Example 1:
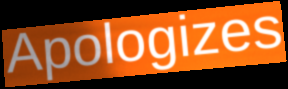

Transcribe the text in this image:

Apologizes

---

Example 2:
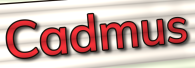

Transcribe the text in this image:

Cadmus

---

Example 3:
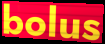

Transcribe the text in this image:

bolus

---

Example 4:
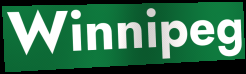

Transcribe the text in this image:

Winnipeg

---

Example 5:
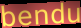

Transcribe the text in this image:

bendu